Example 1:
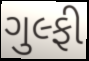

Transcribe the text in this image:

ગુલ્ફી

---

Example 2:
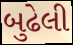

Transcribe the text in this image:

બુઢેલી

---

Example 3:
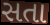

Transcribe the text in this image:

સતા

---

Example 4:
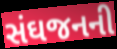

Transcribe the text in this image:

સંઘજનની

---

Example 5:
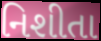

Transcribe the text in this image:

નિશીતા